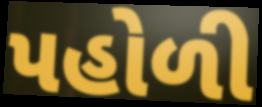
પહોળી